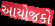
આયોજકો